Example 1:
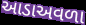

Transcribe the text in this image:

આડાઅવળા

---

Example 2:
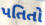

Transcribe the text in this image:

પતિતો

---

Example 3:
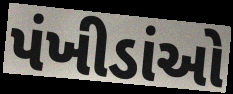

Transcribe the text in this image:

પંખીડાંઓ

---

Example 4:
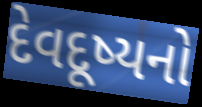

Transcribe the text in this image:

દેવદૂષ્યનો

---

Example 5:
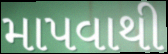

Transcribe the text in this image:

માપવાથી